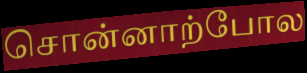
சொன்னாற்போல